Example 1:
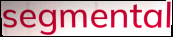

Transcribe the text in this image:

segmental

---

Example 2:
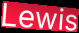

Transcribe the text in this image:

Lewis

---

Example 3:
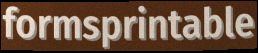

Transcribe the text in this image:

formsprintable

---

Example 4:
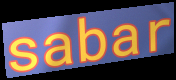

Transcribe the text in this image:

sabar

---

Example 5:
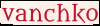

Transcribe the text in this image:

vanchko